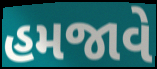
હમજાવે